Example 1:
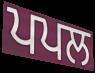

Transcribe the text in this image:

ਪਪਲ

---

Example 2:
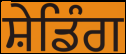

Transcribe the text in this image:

ਸ਼ੇਡਿੰਗ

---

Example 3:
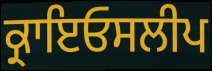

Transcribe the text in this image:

ਕ੍ਰਾਇਓਸਲੀਪ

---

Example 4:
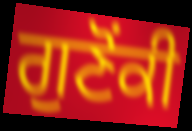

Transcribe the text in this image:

ਗੁਣੋਂਕੀ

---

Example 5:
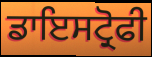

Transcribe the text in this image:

ਡਾਇਸਟ੍ਰੋਫੀ